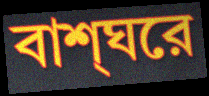
বাশ্ঘরে